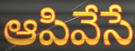
ఆపివేసే